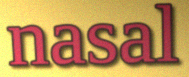
nasal